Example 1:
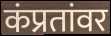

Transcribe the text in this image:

कंप्रतांवर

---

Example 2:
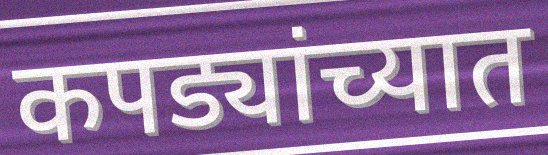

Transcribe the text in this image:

कपड्यांच्यात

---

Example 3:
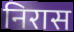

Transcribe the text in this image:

निरास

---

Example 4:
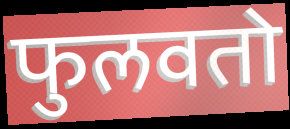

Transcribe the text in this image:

फुलवतो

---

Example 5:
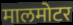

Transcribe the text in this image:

मालमोटर